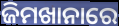
ଜିମଖାନାରେ